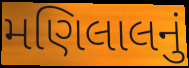
મણિલાલનું